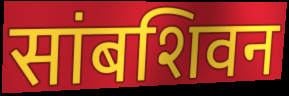
सांबशिवन